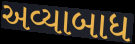
અવ્યાબાધ